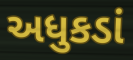
અધુકડાં